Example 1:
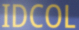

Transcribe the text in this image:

IDCOL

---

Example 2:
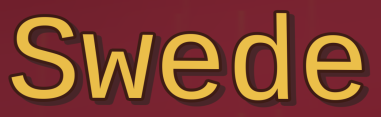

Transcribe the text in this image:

Swede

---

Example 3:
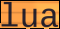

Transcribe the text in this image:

lua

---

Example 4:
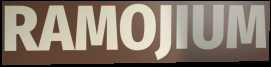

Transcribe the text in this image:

RAMOJIUM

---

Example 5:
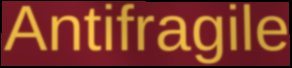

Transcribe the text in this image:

Antifragile